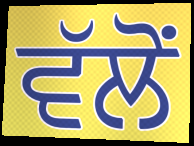
ਵੱਲੋਂ